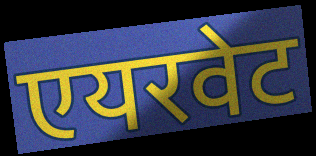
एयरवेट